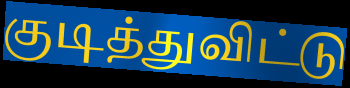
குடித்துவிட்டு